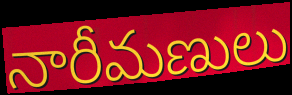
నారీమణులు